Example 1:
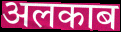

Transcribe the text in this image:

अलकाब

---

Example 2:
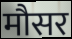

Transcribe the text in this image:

मौसर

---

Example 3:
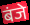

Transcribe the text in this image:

बंजे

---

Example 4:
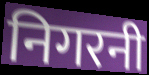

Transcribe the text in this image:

निगरनी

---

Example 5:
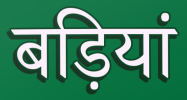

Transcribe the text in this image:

बड़ियां